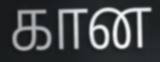
கான